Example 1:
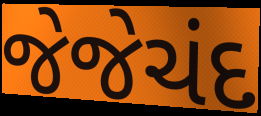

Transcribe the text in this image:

જેજેચંદ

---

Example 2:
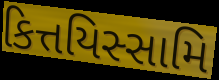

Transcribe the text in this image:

કિત્તયિસ્સામિ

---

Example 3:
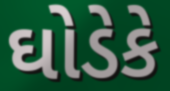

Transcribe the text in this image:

ઘોડેકે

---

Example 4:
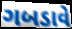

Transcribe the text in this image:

ગબડાવે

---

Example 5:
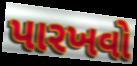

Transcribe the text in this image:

પારખવો